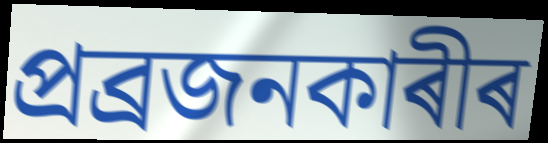
প্ৰব্ৰজনকাৰীৰ